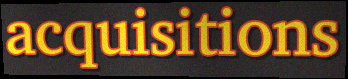
acquisitions